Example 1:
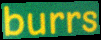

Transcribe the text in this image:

burrs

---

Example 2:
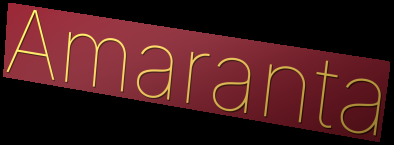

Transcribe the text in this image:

Amaranta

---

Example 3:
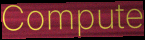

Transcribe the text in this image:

Compute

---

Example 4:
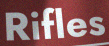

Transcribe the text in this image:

Rifles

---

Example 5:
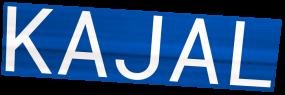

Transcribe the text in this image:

KAJAL